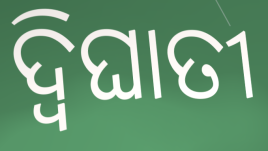
ଦ୍ବିଘାତୀ